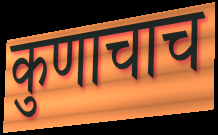
कुणाचाच